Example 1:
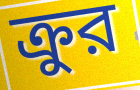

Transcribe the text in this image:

ক্রুর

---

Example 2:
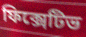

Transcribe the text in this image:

ফিক্সেটিভ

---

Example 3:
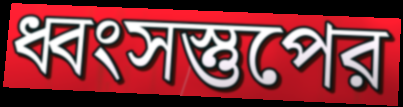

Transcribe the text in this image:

ধ্বংসস্তুপের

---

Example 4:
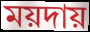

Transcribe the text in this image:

ময়দায়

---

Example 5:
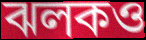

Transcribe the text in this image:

ঝলকও